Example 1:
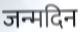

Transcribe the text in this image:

जन्‍मदिन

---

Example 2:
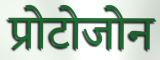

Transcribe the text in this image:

प्रोटोजोन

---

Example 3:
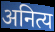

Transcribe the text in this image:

अनित्य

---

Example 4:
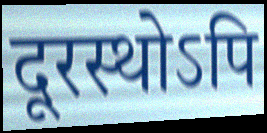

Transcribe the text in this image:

दूरस्थोऽपि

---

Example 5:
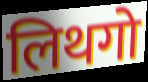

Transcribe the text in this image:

लिथगो